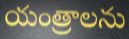
యంత్రాలను